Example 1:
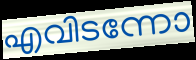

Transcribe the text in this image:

എവിടന്നോ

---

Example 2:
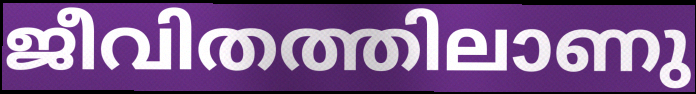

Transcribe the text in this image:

ജീവിതത്തിലാണു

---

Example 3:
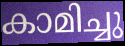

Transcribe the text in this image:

കാമിച്ചു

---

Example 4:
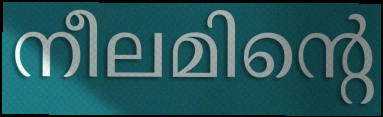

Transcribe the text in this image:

നീലമിന്റെ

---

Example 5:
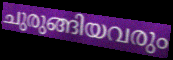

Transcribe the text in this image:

ചുരുങ്ങിയവരും